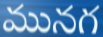
మునగ